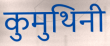
कुमुथिनी